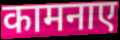
कामनाए